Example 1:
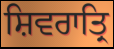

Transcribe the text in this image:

ਸ਼ਿਵਰਾਤ੍ਰਿ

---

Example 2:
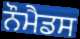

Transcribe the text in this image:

ਨੌਮੈਡਸ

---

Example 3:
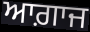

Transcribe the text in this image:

ਆਗ਼ਾਜ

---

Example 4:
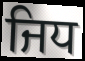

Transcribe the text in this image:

ਜਿਧ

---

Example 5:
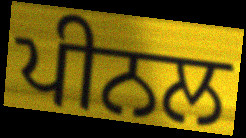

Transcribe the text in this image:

ਪੀਨਲ